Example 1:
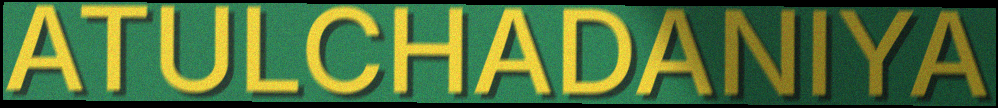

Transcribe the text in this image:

ATULCHADANIYA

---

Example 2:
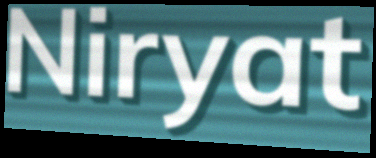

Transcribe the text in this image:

Niryat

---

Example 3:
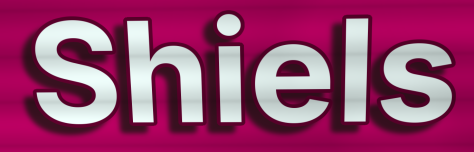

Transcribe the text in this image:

Shiels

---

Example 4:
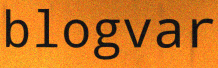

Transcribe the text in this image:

blogvar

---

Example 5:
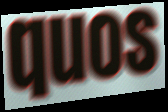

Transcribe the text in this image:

quos